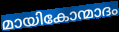
മായികോന്മാദം